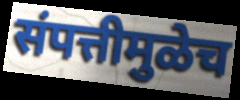
संपत्तीमुळेच